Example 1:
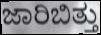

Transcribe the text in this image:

ಜಾರಿಬಿತ್ತು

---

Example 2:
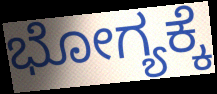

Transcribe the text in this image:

ಭೋಗ್ಯಕ್ಕೆ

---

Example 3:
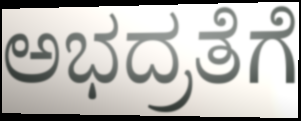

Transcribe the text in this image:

ಅಭದ್ರತೆಗೆ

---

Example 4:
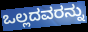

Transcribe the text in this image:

ಒಲ್ಲದವರನ್ನು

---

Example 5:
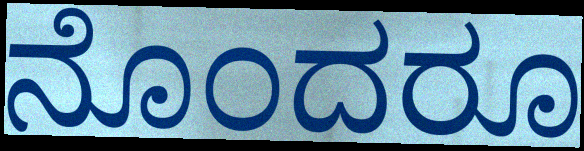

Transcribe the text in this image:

ನೊಂದರೂ